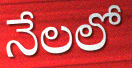
నేలలో